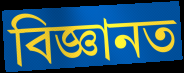
বিজ্ঞানত